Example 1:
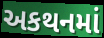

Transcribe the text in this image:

અકથનમાં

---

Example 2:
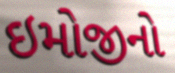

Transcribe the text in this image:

ઇમોજીનો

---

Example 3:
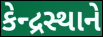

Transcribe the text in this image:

કેન્દ્રસ્થાને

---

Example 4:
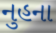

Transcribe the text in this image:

નુહના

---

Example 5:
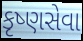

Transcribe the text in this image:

કૃષ્ણસેવા